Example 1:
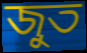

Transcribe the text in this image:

জুত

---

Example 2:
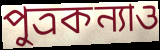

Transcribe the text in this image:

পুত্রকন্যাও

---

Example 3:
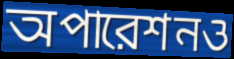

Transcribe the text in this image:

অপারেশনও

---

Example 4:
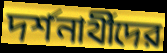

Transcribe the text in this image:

দর্শনার্থীদের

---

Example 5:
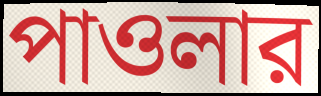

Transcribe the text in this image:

পাওলার